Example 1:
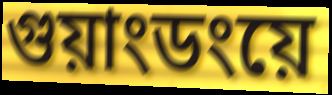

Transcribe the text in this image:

গুয়াংডংয়ে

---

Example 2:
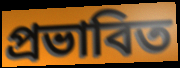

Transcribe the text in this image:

প্রভাবিত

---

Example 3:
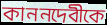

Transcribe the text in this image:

কাননদেবীকে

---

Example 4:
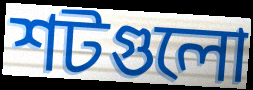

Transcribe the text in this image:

শটগুলো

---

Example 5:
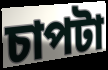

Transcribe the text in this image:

চাপটা